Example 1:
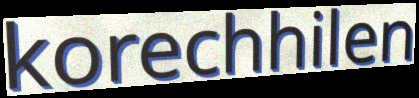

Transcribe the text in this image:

korechhilen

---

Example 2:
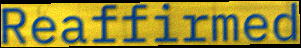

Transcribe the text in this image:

Reaffirmed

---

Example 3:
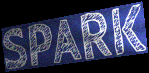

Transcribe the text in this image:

SPARK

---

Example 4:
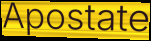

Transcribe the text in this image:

Apostate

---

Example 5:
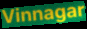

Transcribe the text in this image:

Vinnagar